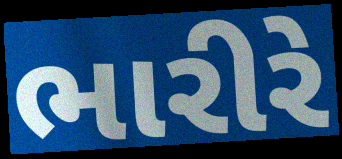
ભારીરે